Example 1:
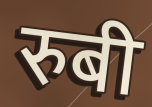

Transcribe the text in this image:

रुबी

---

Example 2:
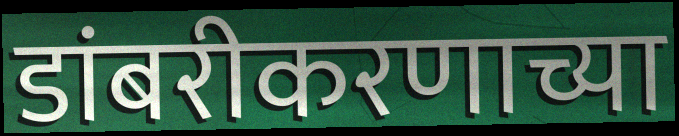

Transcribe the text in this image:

डांबरीकरणाच्या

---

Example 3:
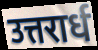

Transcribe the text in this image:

उत्तरार्ध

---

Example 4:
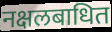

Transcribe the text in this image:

नक्षलबाधित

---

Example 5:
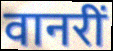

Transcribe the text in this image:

वानरीं